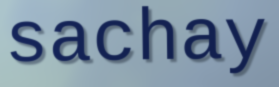
sachay